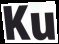
Ku